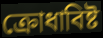
ক্রোধাবিষ্ট